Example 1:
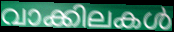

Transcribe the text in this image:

വാക്കിലകൾ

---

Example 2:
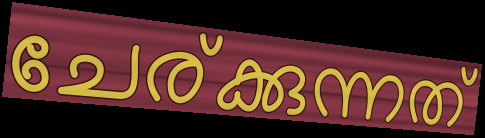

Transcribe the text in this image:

ചേര്ക്കുന്നത്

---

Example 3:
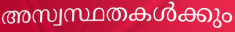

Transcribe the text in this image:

അസ്വസ്ഥതകൾക്കും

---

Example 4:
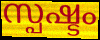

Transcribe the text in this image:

സ്പഷ്ടം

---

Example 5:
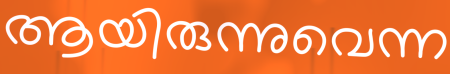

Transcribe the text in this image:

ആയിരുന്നുവെന്ന